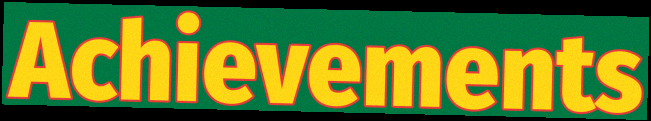
Achievements